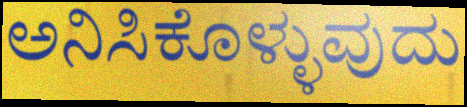
ಅನಿಸಿಕೊಳ್ಳುವುದು